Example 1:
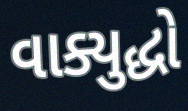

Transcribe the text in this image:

વાક્યુદ્ધો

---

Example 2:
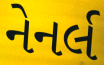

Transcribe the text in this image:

નેનર્લ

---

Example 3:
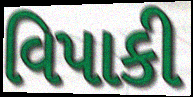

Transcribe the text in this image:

વિપાકી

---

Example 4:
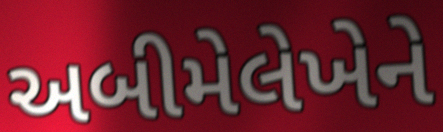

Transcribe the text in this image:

અબીમેલેખેને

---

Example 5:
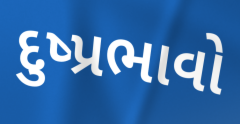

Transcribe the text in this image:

દુષ્પ્રભાવો